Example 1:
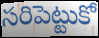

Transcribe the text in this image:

సరిపెట్టుకో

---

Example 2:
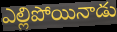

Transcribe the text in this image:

ఎల్లిపోయినాడు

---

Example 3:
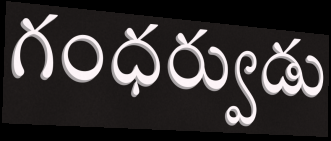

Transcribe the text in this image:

గంధర్వుడు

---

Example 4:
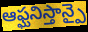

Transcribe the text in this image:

ఆఫ్ఘనిస్తాన్పై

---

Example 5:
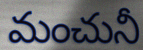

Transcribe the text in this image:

మంచునీ